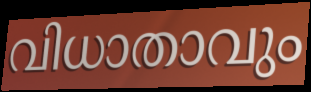
വിധാതാവും